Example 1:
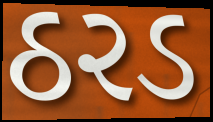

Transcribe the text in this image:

ઠરડ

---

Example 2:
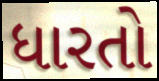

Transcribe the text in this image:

ધારતો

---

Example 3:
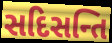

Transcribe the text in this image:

સદિસન્તિ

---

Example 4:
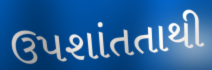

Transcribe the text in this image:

ઉપશાંતતાથી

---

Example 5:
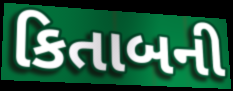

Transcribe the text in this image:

કિતાબની